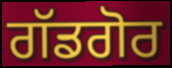
ਗੱਡਗੋਰ